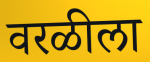
वरळीला